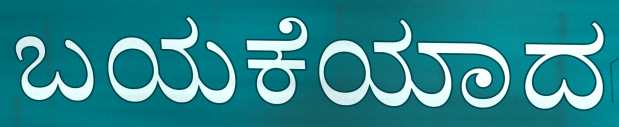
ಬಯಕೆಯಾದ